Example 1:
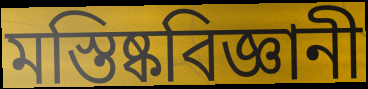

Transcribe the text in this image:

মস্তিষ্কবিজ্ঞানী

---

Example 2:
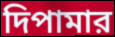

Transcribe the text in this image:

দিপামার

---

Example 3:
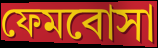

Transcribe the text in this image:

ফেমবোসা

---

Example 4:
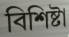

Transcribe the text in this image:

বিশিষ্টা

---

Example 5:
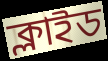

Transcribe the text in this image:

ক্লাইড